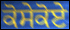
ਕੋਸੇਕੋਏ